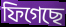
ফিগেছে